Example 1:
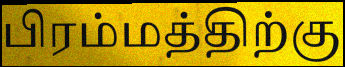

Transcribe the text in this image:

பிரம்மத்திற்கு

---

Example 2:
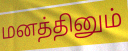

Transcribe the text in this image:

மனத்தினும்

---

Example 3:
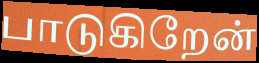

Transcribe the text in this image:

பாடுகிறேன்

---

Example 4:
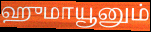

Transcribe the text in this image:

ஹுமாயூனும்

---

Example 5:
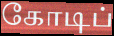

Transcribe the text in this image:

கோடிப்